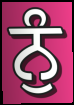
ਨੁੰ